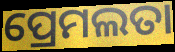
ପ୍ରେମଲତା